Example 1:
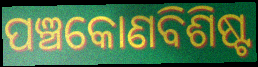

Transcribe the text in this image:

ପଞ୍ଚକୋଣବିଶିଷ୍ଟ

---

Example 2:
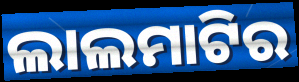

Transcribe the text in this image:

ଲାଲମାଟିର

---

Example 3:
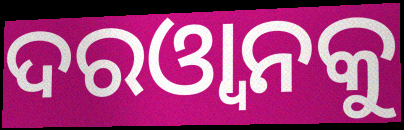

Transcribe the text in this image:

ଦରଓ୍ୱାନକୁ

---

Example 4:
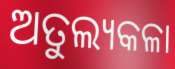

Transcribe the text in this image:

ଅତୁଲ୍ୟକଳା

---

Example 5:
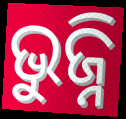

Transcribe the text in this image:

ଭୁଜ୍ନି